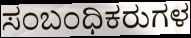
ಸಂಬಂಧಿಕರುಗಳ